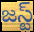
జస్ట్